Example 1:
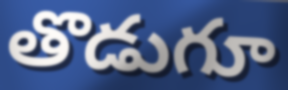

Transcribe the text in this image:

తొడుగూ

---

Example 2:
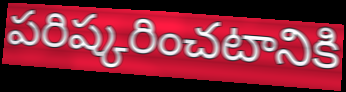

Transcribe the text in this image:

పరిష్కరించటానికి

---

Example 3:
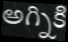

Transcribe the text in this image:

అగ్నికి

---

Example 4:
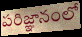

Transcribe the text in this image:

పరిజ్ఞానంలో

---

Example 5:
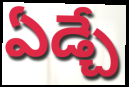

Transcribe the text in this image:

ఏడ్చే